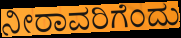
ನೀರಾವರಿಗೆಂದು